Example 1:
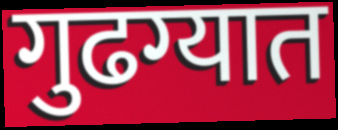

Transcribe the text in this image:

गुढग्यात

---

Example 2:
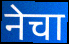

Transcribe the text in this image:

नेचा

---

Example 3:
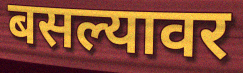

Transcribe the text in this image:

बसल्यावर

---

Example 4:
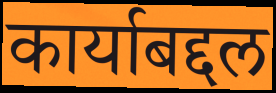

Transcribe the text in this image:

कार्याबद्दल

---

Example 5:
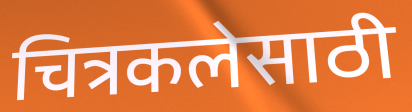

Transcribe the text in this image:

चित्रकलेसाठी